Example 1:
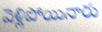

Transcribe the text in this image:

వెళ్లిపోయినారు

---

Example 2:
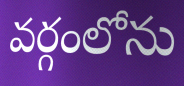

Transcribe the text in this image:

వర్గంలోను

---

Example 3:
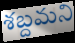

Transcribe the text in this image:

శబ్దమని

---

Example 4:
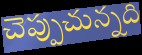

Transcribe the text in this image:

చెప్పుచున్నది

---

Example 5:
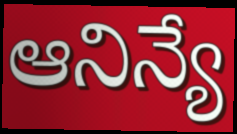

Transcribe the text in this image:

ఆనిన్యే